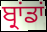
ਬ੍ਰਾਂਡਾਂ